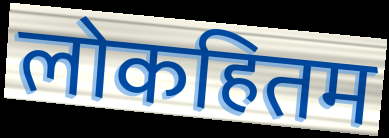
लोकहितम